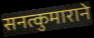
सनत्कुमाराने